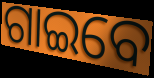
ଗାଇବେ